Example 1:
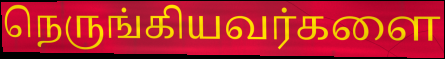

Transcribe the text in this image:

நெருங்கியவர்களை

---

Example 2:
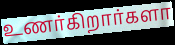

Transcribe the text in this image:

உணர்கிறார்களா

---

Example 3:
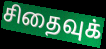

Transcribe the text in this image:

சிதைவுக்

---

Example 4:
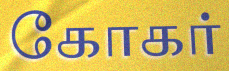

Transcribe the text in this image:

கோகர்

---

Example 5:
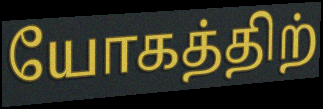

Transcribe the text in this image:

யோகத்திற்